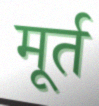
मूर्त